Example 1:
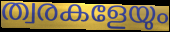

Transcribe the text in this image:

ത്വരകളേയും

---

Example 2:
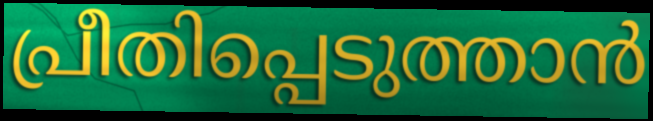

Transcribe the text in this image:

പ്രീതിപ്പെടുത്താൻ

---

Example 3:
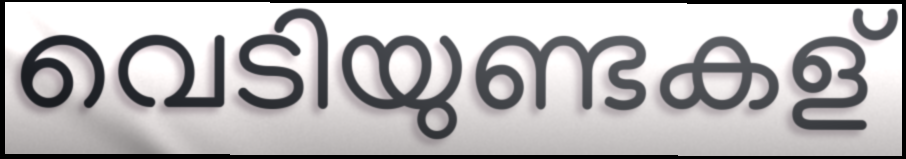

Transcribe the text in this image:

വെടിയുണ്ടകള്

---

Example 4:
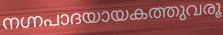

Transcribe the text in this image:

നഗ്നപാദയായകത്തുവരൂ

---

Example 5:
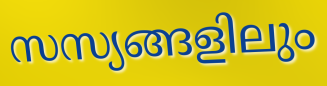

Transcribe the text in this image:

സസ്യങ്ങളിലും